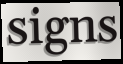
signs